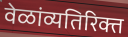
वेळांव्यतिरिक्त